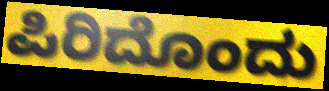
ಪಿರಿದೊಂದು